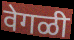
वेगळी